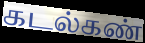
கடல்கண்